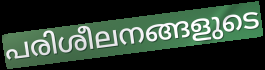
പരിശീലനങ്ങളുടെ